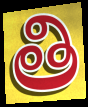
తి